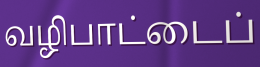
வழிபாட்டைப்